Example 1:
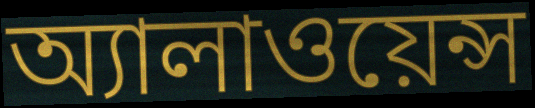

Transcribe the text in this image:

অ্যালাওয়েন্স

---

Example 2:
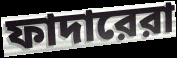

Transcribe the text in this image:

ফাদারেরা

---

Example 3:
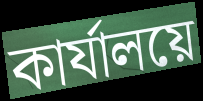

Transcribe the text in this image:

কার্যালয়ে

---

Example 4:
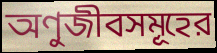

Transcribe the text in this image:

অণুজীবসমূহের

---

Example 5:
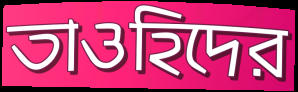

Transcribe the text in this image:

তাওহিদের